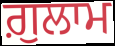
ਗ਼ੁਲਾਮ